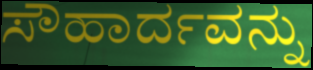
ಸೌಹಾರ್ದವನ್ನು